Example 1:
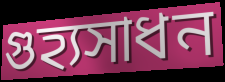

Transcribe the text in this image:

গুহ্যসাধন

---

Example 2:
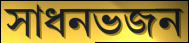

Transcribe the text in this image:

সাধনভজন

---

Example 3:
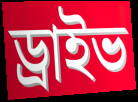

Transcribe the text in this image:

ড্রাইভ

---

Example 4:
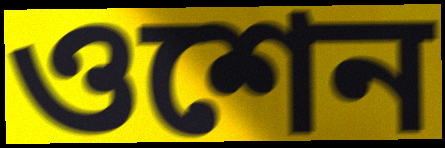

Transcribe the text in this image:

ওশেন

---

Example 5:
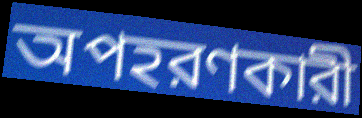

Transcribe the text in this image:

অপহরণকারী